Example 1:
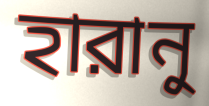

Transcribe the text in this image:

হারানু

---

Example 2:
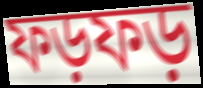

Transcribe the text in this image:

ফড়ফড়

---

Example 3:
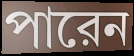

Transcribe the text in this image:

পারেন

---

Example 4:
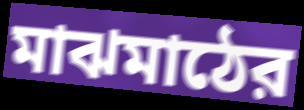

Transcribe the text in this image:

মাঝমাঠের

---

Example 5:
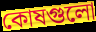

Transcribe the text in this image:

কোষগুলো